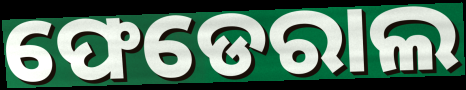
ଫେଡେରାଲ